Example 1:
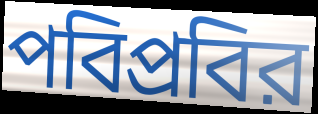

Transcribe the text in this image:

পবিপ্রবির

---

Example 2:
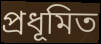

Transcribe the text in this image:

প্রধূমিত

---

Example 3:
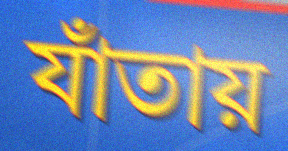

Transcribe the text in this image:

যাঁতায়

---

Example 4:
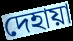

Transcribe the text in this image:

দেহায়া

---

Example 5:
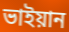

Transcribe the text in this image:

ভাইয়ান